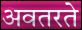
अवतरते